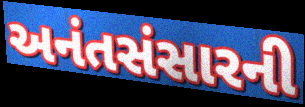
અનંતસંસારની